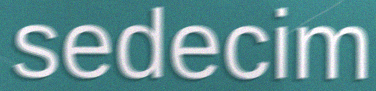
sedecim